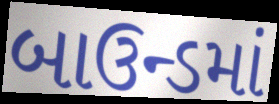
બાઉન્ડમાં